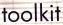
toolkit